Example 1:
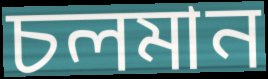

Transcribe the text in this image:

চলমান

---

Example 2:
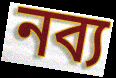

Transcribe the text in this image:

নব্য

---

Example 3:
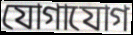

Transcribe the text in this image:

যোগাযোগ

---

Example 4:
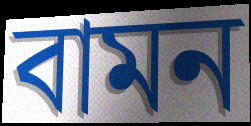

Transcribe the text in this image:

বামন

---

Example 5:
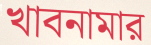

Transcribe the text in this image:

খাবনামার